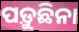
ପଡ଼ୁଛିନା